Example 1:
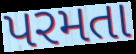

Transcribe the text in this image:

પરમતા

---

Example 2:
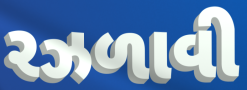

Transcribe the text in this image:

રઝળાવી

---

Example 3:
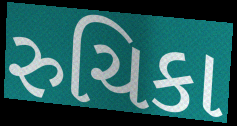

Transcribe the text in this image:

રુચિકા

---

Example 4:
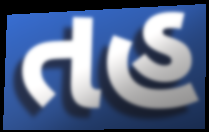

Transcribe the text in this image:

તહ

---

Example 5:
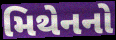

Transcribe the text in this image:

મિથેનનો